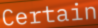
Certain